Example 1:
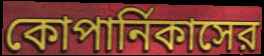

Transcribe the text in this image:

কোপার্নিকাসের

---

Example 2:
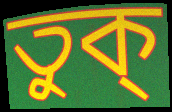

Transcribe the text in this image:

তুক্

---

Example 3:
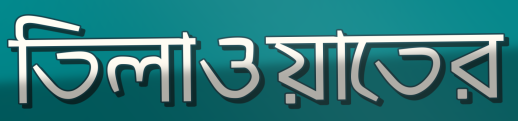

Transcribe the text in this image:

তিলাওয়াতের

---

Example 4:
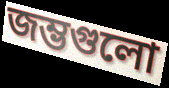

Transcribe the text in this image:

জম্ভগুলো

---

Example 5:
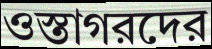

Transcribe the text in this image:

ওস্তাগরদের